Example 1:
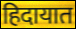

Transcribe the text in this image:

हिदायात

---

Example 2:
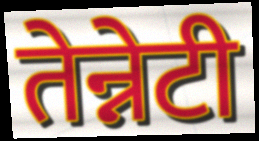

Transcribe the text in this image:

तेन्नेटी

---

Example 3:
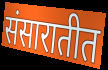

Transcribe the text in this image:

संसारातीत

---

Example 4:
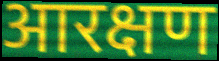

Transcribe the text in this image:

आरक्षण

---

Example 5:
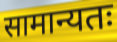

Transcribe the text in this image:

सामान्यतः